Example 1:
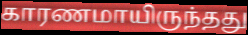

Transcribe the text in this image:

காரணமாயிருந்தது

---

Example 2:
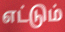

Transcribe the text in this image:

எட்டும்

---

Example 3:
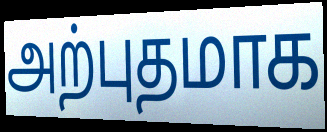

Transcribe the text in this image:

அற்புதமாக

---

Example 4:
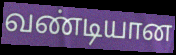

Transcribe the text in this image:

வண்டியான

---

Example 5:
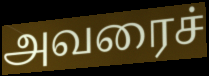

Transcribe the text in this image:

அவரைச்